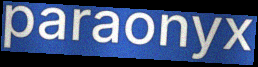
paraonyx